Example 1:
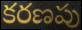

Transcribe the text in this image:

కరణపు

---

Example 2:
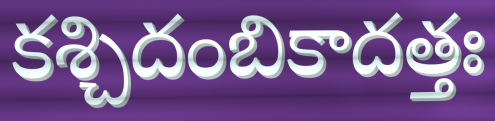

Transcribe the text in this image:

కశ్చిదంబికాదత్తః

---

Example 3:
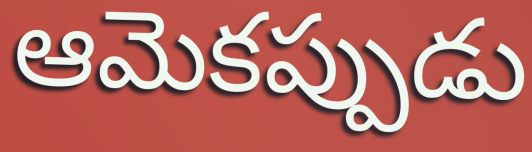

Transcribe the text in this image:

ఆమెకప్పుడు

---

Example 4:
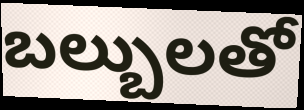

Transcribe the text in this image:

బల్బులతో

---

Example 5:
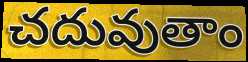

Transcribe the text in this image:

చదువుతాం